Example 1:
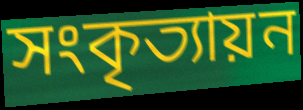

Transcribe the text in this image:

সংকৃত্যায়ন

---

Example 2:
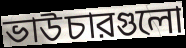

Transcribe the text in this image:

ভাউচারগুলো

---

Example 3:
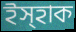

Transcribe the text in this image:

ইস্‌হাক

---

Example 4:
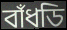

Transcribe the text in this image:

বাঁধডি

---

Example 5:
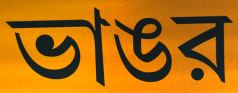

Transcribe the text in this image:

ভাঙর